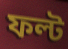
ফল্ট